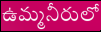
ఉమ్మనీరులో